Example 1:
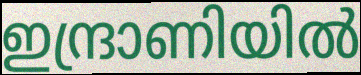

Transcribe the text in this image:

ഇന്ദ്രാണിയിൽ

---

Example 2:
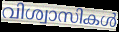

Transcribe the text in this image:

വിശ്വാസികൾ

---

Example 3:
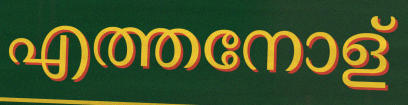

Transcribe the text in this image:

എത്തനോള്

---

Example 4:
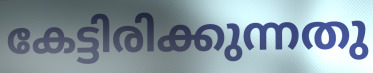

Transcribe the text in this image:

കേട്ടിരിക്കുന്നതു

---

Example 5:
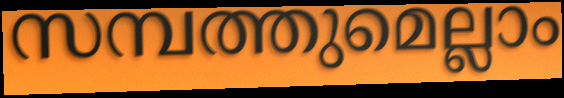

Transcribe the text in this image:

സമ്പത്തുമെല്ലാം